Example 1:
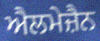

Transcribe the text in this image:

ਐਲਮੇਜ਼ੈਨ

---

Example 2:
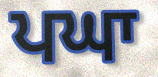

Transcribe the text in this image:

ਪਘਾ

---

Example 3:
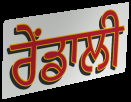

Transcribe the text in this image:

ਰੇਂਡਾਲੀ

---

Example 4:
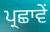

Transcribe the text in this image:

ਪ੍ਰਛਾਵੇਂ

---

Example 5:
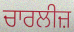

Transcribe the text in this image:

ਚਾਰਲੀਜ਼